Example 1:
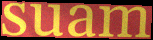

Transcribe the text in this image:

suam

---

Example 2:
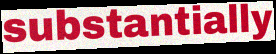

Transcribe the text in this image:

substantially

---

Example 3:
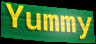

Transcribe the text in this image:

Yummy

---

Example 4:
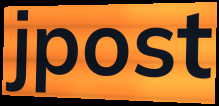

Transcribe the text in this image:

jpost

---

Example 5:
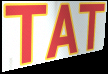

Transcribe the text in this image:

TAT